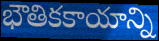
భౌతికకాయాన్ని